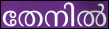
തേനിൽ